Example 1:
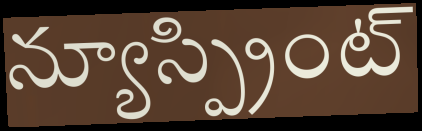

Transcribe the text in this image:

న్యూస్ప్రింట్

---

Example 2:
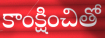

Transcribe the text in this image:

కాంక్షించితో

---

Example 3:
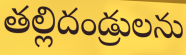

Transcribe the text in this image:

తల్లిదండ్రులను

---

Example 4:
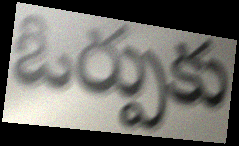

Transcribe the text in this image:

ఓర్పుకు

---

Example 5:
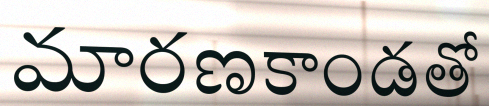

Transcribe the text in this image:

మారణకాండతో